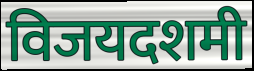
विजयदशमी